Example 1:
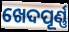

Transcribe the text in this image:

ଖେଦପୂର୍ଣ୍ଣ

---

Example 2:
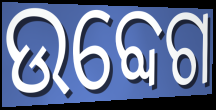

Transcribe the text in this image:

ଉବ୍ଦେଗ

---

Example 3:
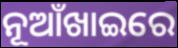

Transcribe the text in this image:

ନୂଆଁଖାଇରେ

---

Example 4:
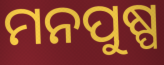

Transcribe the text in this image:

ମନପୁଷ୍ପ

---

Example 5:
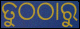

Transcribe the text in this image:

ତୁଠଠାରୁ